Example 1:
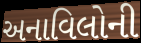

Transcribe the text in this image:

અનાવિલોની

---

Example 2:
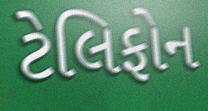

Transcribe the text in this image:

ટેલિફોન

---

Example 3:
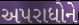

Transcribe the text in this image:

અપરાધોને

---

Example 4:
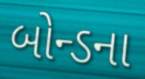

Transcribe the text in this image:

બોન્ડના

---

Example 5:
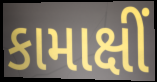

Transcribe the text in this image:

કામાક્ષીં